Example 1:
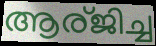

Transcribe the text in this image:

ആര്ജിച്ച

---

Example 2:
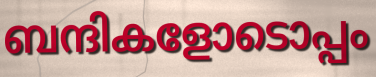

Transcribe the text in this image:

ബന്ദികളോടൊപ്പം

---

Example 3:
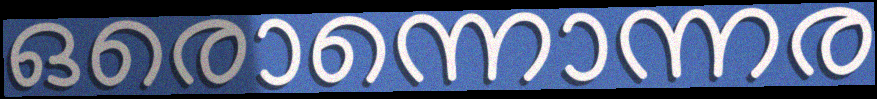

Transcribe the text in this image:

ഒരൊന്നൊന്നര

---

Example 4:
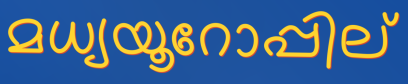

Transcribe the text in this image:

മധ്യയൂറോപ്പില്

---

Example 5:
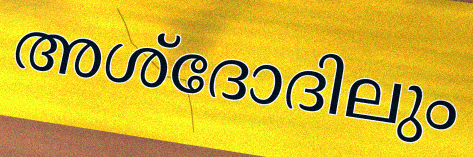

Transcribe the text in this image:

അശ്ദോദിലും